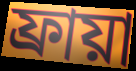
ফ্রায়া